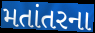
મતાંતરના